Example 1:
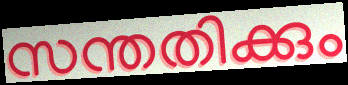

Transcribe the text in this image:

സന്തതിക്കും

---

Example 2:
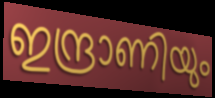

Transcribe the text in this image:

ഇന്ദ്രാണിയും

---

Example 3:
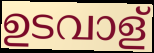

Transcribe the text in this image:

ഉടവാള്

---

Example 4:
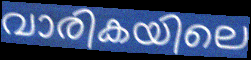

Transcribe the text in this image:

വാരികയിലെ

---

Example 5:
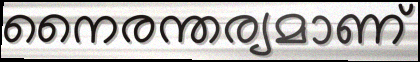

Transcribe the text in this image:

നൈരന്തര്യമാണ്